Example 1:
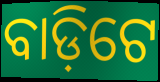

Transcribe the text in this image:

ବାଡ଼ିଟେ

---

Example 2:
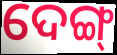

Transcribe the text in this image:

ଦେଙ୍ଗ୍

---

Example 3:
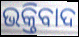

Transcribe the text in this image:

ଭକ୍ତିବାଦ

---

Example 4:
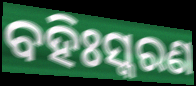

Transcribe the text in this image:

ବହିଃସ୍କରଣ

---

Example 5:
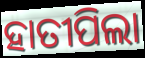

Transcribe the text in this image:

ହାତୀପିଲା